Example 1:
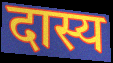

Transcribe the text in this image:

दास्य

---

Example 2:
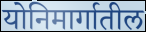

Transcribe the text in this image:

योनिमार्गातील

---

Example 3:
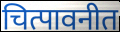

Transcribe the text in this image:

चित्पावनीत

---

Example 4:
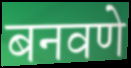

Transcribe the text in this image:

बनवणे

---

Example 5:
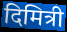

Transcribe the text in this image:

दिमित्री